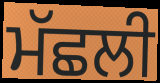
ਮੱਛਲੀ